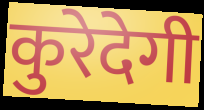
कुरेदेगी